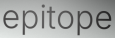
epitope